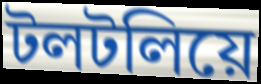
টলটলিয়ে